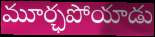
మూర్ఛపోయాడు